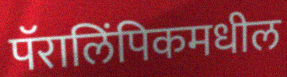
पॅरालिंपिकमधील